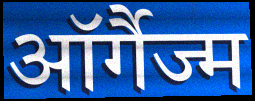
ऑर्गैज्म